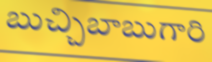
బుచ్చిబాబుగారి